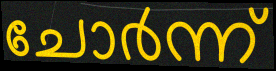
ചോർന്ന്